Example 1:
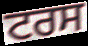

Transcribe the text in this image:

ਟਰਸ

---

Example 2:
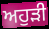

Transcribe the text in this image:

ਅਹੁੜੀ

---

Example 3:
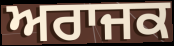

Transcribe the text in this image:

ਅਰਾਜਕ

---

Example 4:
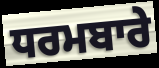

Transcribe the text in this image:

ਧਰਮਬਾਰੇ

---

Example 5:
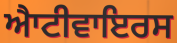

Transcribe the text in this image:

ਐਾਟੀਵਾਇਰਸ